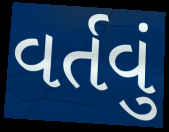
વર્તવું